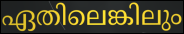
ഏതിലെങ്കിലും